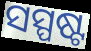
ସସ୍ପଷ୍ଟ